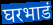
घरभाडं